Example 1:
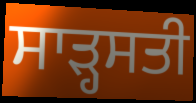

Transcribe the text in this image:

ਸਾੜ੍ਹਸਤੀ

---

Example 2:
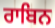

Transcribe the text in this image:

ਰਾਬਿਨ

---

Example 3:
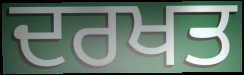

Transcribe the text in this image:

ਦਰਖਤ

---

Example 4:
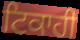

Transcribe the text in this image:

ਟਿਕਾਹੀ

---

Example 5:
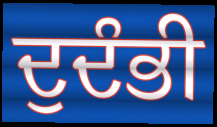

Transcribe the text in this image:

ਦੁਦੰਭੀ